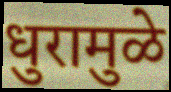
धुरामुळे